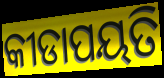
କୀଡାପୟତି